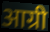
आग्री